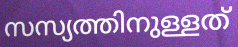
സസ്യത്തിനുള്ളത്